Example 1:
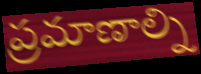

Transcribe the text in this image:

ప్రమాణాల్ని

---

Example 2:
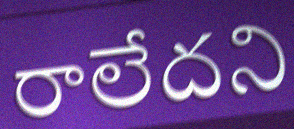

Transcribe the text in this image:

రాలేదని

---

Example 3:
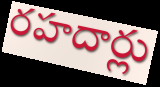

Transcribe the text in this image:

రహదార్లు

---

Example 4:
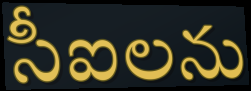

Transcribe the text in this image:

సీఐలను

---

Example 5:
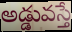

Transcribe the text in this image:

అడ్డువస్తే